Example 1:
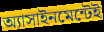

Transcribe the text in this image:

অ্যাসাইনমেন্টেই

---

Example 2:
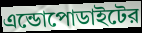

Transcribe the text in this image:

এন্ডোপোডাইটের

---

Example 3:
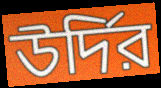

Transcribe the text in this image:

উর্দির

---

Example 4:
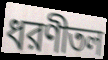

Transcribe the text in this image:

ধরণীতল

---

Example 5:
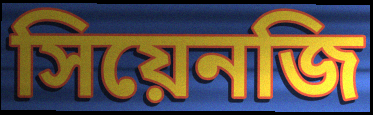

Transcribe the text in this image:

সিয়েনজি